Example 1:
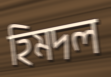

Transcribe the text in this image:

হিমদল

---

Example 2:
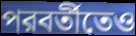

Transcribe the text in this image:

পরবর্তীতেও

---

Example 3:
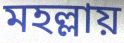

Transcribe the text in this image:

মহল্লায়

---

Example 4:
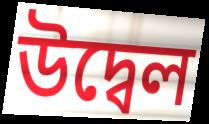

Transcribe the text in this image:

উদ্বেল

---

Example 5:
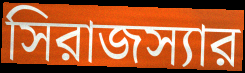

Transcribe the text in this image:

সিরাজস্যার